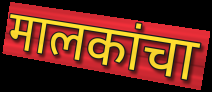
मालकांचा